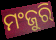
ମଂଜୁରି